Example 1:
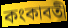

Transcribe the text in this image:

কংকাবতী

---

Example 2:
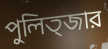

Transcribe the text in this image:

পুলিত্জার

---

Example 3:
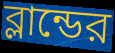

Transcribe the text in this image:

ব্লান্ডের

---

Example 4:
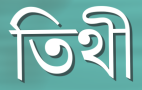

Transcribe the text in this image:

তিথী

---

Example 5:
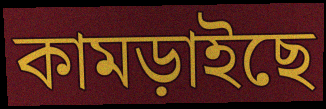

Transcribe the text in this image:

কামড়াইছে